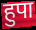
हुपा